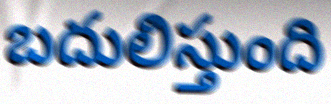
బదులిస్తుంది